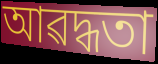
আৱদ্ধতা